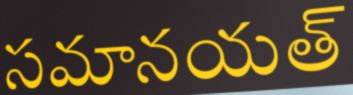
సమానయత్